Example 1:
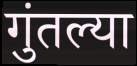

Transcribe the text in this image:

गुंतल्या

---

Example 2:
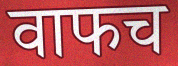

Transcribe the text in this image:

वाफच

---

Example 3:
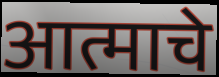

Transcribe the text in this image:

आत्माचे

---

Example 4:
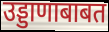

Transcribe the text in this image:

उड्डाणाबाबत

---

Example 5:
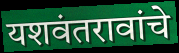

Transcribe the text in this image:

यशवंतरावांचे